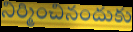
నిర్మించినందుకు